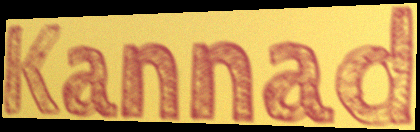
Kannad